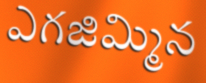
ఎగజిమ్మిన